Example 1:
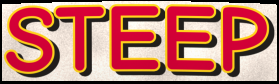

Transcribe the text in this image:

STEEP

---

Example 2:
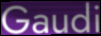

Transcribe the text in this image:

Gaudi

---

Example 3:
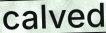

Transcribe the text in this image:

calved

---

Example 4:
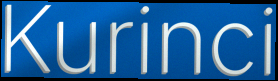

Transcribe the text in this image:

Kurinci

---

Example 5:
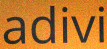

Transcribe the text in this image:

adivi